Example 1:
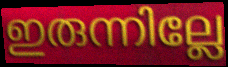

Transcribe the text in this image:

ഇരുന്നില്ലേ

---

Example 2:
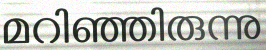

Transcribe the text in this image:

മറിഞ്ഞിരുന്നു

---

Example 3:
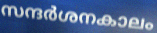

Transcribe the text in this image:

സന്ദർശനകാലം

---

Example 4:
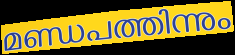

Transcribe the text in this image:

മണ്ഡപത്തിന്നും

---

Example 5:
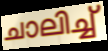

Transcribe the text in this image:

ചാലിച്ച്